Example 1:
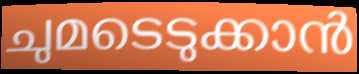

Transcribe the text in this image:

ചുമടെടുക്കാൻ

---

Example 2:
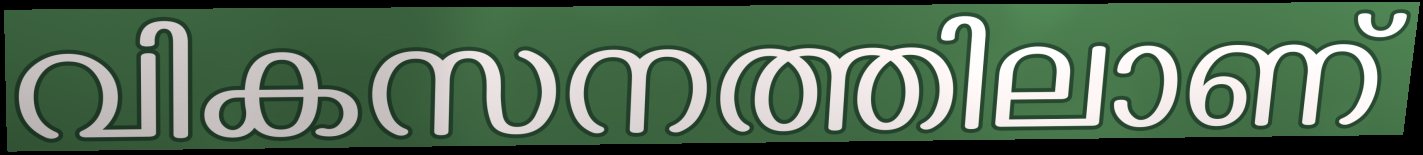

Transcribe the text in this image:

വികസനത്തിലാണ്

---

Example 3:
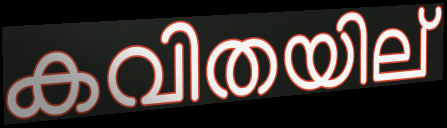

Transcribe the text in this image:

കവിതയില്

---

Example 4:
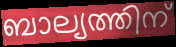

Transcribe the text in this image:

ബാല്യത്തിന്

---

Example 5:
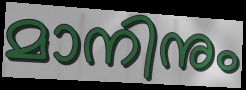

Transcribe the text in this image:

മാനിനും